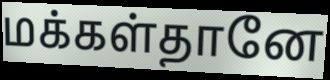
மக்கள்தானே